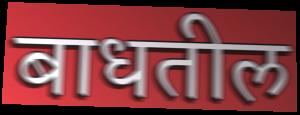
बाधतील